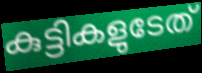
കുട്ടികളുടേത്